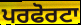
ਪਰਫੋਰਟਾ